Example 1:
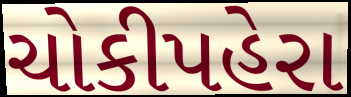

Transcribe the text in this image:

ચોકીપહેરા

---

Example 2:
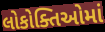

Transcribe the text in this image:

લોકોક્તિઓમાં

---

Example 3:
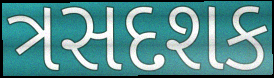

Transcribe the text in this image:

ત્રસદશક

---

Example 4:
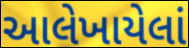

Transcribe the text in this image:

આલેખાયેલાં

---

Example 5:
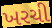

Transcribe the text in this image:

ખરચી